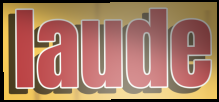
laude